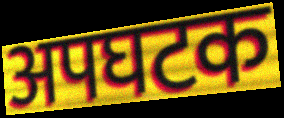
अपघटक